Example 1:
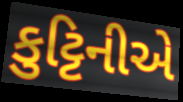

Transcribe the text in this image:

કુટ્ટિનીએ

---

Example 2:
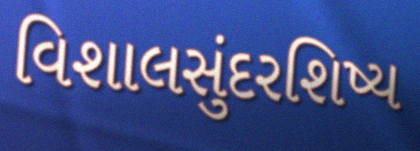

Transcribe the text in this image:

વિશાલસુંદરશિષ્ય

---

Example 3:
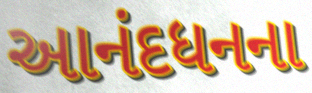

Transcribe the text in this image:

આનંદધનના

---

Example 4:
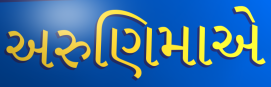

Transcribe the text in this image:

અરુણિમાએ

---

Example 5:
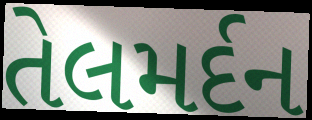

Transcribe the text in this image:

તેલમર્દન